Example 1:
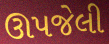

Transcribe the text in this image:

ઊપજેલી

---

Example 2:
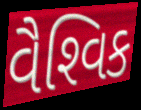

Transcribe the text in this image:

વૈશ્‍વિક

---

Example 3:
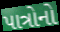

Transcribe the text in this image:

પાત્રોનો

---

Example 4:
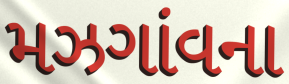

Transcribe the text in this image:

મઝગાંવના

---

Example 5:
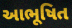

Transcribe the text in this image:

આભૂષિત